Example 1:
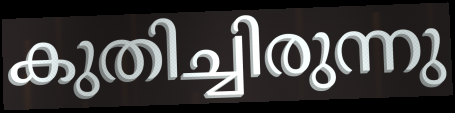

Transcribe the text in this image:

കുതിച്ചിരുന്നു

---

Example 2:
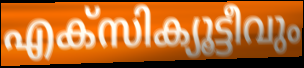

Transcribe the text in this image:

എക്സിക്യൂട്ടീവും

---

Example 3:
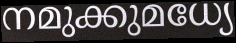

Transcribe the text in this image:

നമുക്കുമധ്യേ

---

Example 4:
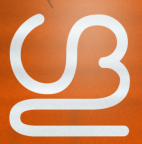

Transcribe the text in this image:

ഗൂ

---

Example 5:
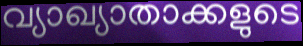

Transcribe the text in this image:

വ്യാഖ്യാതാക്കളുടെ